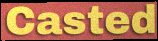
Casted